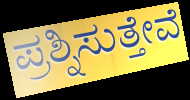
ಪ್ರಶ್ನಿಸುತ್ತೇವೆ